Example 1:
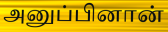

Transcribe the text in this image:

அனுப்பினான்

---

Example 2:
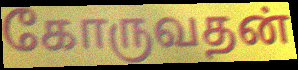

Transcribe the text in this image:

கோருவதன்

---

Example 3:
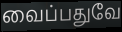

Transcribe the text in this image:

வைப்பதுவே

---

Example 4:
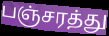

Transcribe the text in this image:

பஞ்சரத்து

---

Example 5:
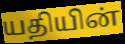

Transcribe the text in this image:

யதியின்